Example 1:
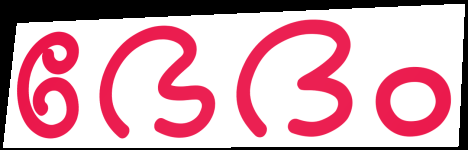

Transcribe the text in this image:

ഭേദം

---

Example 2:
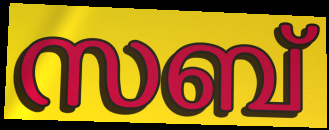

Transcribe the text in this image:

സബ്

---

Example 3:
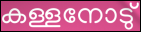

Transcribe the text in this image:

കള്ളനോടു്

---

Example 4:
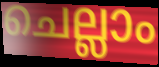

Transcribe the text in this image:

ചെല്ലാം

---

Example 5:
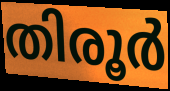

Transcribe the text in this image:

തിരൂർ